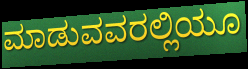
ಮಾಡುವವರಲ್ಲಿಯೂ